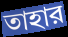
তাহার